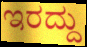
ಇರದ್ದು